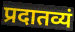
प्रदातव्यं